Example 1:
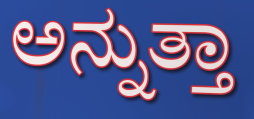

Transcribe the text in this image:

ಅನ್ನುತ್ತಾ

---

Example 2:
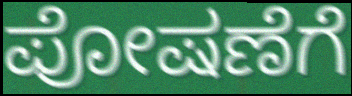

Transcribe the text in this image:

ಪೋಷಣೆಗೆ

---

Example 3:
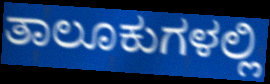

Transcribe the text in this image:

ತಾಲೂಕುಗಳಲ್ಲಿ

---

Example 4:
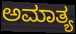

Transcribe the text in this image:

ಅಮಾತ್ಯ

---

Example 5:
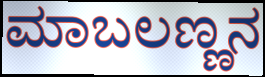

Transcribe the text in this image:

ಮಾಬಲಣ್ಣನ